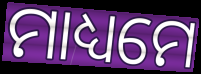
ମାଧ୍ୟମେ